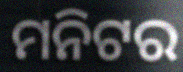
ମନିଟର